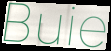
Buie